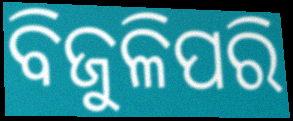
ବିଜୁଳିପରି